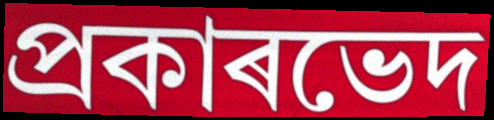
প্ৰকাৰভেদ